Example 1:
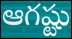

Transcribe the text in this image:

ఆగష్టు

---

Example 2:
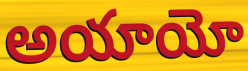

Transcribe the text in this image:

అయాయో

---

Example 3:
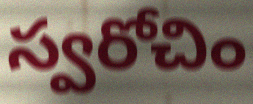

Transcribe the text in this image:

స్వరోచిం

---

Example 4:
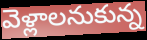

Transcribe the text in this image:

వెళ్లాలనుకున్న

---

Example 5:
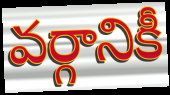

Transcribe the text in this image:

వర్గానికీ